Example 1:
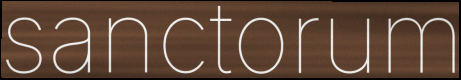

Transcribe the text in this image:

sanctorum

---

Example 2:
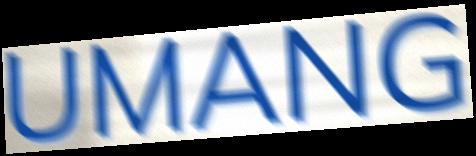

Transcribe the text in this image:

UMANG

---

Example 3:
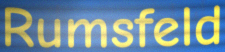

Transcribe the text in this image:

Rumsfeld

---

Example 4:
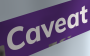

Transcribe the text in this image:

Caveat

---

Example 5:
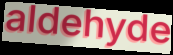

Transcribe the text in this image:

aldehyde